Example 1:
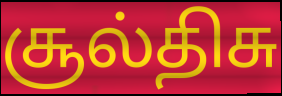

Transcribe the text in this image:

சூல்திசு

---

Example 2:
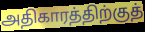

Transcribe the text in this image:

அதிகாரத்திற்குத்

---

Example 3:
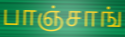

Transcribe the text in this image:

பாஞ்சாங்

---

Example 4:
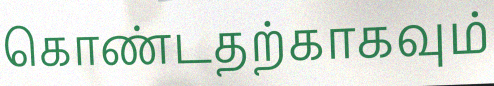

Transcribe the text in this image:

கொண்டதற்காகவும்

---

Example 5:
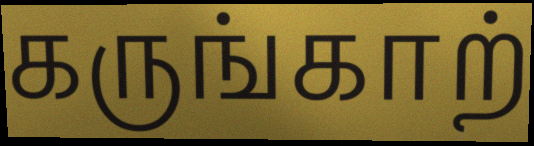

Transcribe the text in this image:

கருங்காற்